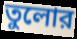
তুলোর